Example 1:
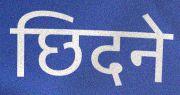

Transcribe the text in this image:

छिदने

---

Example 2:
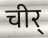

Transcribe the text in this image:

चीर्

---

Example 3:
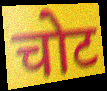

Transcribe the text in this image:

चोट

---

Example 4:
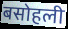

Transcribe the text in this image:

बसोहली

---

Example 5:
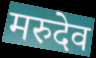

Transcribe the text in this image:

मरुदेव